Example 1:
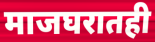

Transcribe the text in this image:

माजघरातही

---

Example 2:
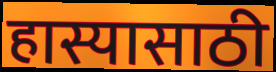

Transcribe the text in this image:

हास्यासाठी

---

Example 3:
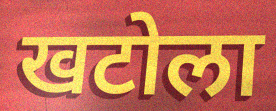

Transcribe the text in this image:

खटोला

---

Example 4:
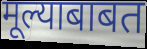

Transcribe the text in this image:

मूल्याबाबत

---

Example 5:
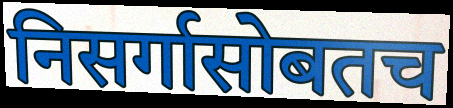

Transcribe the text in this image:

निसर्गासोबतच